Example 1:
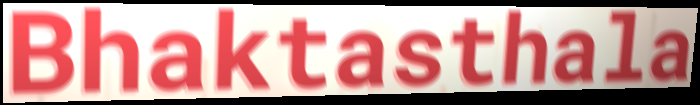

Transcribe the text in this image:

Bhaktasthala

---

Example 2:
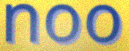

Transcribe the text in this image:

noo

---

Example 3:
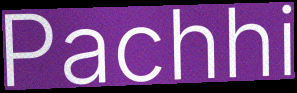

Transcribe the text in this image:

Pachhi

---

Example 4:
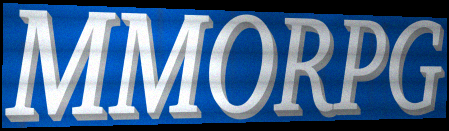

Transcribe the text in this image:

MMORPG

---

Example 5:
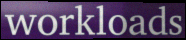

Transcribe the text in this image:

workloads